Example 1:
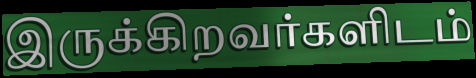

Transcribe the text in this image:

இருக்கிறவர்களிடம்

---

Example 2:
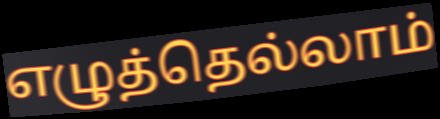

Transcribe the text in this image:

எழுத்தெல்லாம்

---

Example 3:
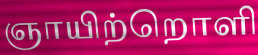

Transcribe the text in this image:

ஞாயிற்றொளி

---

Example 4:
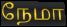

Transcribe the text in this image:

நேமா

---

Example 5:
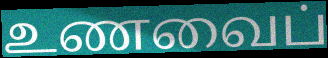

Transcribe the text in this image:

உணவைப்